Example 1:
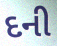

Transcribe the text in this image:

દની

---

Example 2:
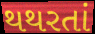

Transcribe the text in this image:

થથરતાં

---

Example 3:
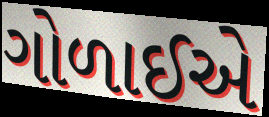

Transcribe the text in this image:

ગોળાઈએ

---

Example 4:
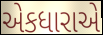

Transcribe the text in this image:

એકધારાએ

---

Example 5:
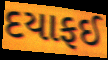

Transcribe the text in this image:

દયાફઈ